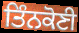
ਤਿੰਨਕੋਣੀ